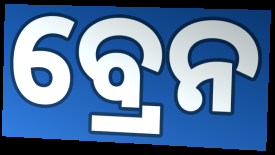
ବ୍ରେନ